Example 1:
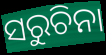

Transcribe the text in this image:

ସରୁଚିନା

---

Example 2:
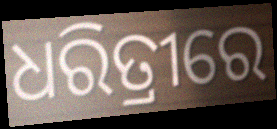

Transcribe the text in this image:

ଧରିତ୍ରୀରେ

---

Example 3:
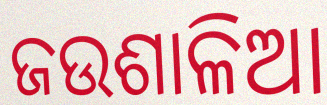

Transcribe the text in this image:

ଜଉଶାଳିଆ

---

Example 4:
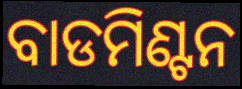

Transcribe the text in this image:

ବାଡମିଣ୍ଟନ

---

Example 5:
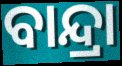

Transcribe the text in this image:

ବାନ୍ଦ୍ରା